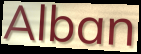
Alban